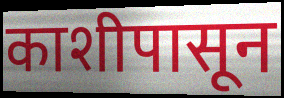
काशीपासून